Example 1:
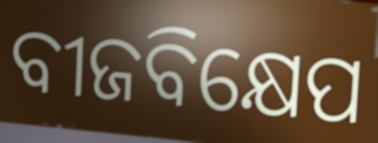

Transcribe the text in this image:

ବୀଜବିକ୍ଷେପ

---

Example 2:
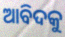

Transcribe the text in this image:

ଆବିଦକୁ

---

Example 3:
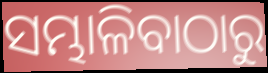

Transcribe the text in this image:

ସମ୍ଭାଳିବାଠାରୁ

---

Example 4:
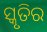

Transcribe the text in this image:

ସ୍କୃତିର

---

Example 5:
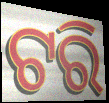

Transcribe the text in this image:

ଟରି